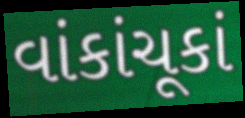
વાંકાંચૂકાં